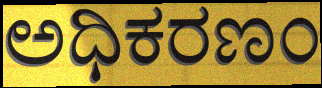
ಅಧಿಕರಣಂ